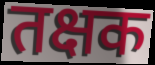
तक्षक